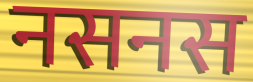
नसनस